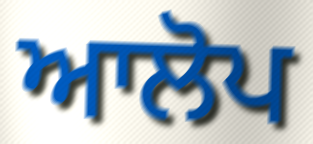
ਆਲੋਪ